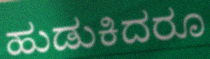
ಹುಡುಕಿದರೂ